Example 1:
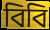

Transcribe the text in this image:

বিবি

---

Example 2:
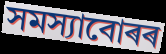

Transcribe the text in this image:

সমস্যাবোৰৰ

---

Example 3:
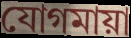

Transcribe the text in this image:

যোগমায়া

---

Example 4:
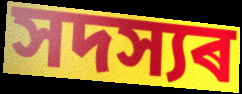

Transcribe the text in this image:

সদস্যৰ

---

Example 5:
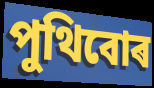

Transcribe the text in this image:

পুথিবোৰ